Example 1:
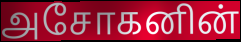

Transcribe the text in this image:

அசோகனின்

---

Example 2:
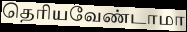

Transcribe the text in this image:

தெரியவேண்டாமா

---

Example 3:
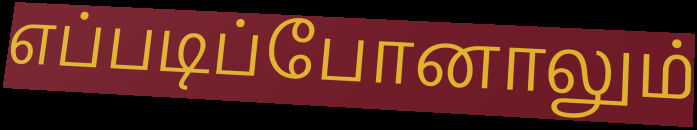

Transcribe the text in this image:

எப்படிப்போனாலும்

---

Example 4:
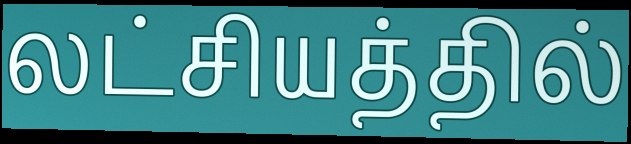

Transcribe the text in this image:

லட்சியத்தில்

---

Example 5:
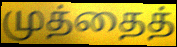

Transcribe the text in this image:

முத்தைத்